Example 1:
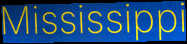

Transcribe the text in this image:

Mississippi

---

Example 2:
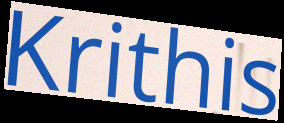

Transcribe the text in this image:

Krithis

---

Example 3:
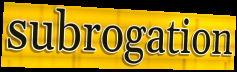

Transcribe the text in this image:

subrogation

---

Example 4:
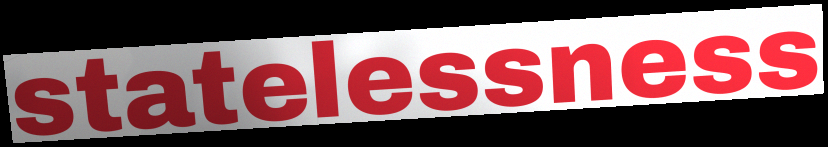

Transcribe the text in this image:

statelessness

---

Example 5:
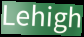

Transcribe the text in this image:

Lehigh